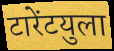
टारेंटयुला